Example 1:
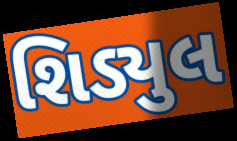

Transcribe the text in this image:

શિડ્યુલ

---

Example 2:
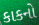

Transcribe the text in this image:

કાકનો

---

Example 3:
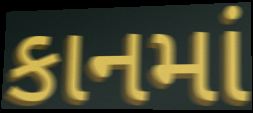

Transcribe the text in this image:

કાનમાં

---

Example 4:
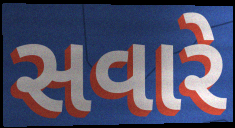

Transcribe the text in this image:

સવારે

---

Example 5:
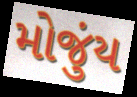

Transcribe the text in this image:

મોજુંય